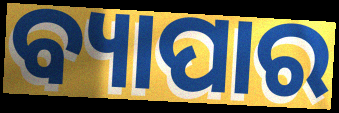
ବ୍ୟାପାର